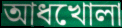
আধখোলা